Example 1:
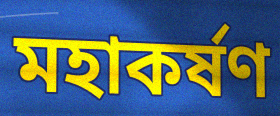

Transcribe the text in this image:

মহাকৰ্ষণ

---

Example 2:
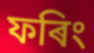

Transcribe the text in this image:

ফৰিং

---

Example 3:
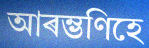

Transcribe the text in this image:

আৰম্ভণিহে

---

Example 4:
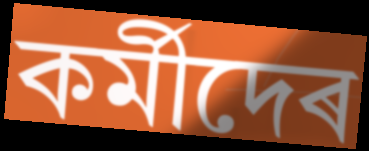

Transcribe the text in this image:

কৰ্মীদেৰ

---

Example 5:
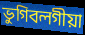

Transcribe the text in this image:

ভুগিবলগীয়া